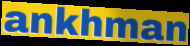
ankhman